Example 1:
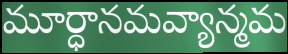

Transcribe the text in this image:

మూర్ధానమవ్యాన్మమ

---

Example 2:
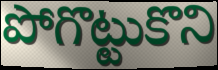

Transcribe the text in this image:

పోగొట్టుకొని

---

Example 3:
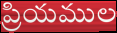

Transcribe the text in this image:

ప్రియముల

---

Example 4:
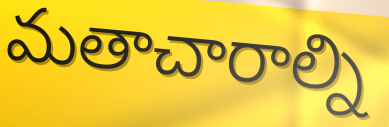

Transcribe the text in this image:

మతాచారాల్ని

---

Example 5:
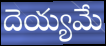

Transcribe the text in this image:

దెయ్యమే